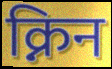
क्निन